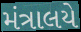
મંત્રાલયે